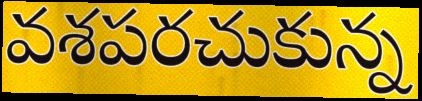
వశపరచుకున్న